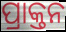
ପ୍ରାକ୍ତନ